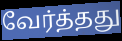
வேர்த்தது